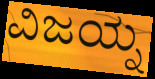
ವಿಜಯ್ನ